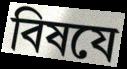
বিষযে